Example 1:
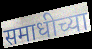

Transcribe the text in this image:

समाधीच्या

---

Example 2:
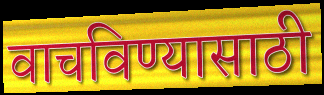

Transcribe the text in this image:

वाचविण्यासाठी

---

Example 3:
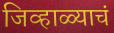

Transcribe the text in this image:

जिव्हाळ्याचं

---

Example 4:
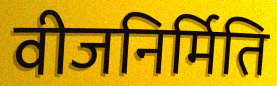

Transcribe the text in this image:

वीजनिर्मिति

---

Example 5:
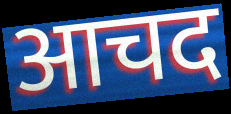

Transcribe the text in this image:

आचद